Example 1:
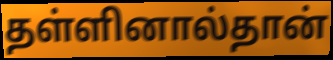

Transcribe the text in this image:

தள்ளினால்தான்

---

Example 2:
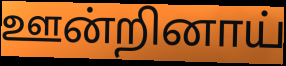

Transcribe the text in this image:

ஊன்றினாய்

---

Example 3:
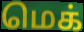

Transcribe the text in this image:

மெக்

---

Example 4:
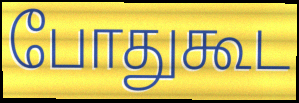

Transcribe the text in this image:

போதுகூட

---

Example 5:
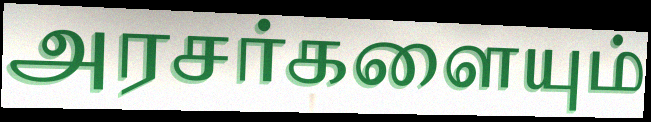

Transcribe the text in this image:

அரசர்களையும்